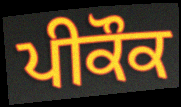
ਪੀਕੌਕ